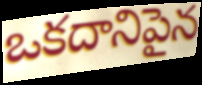
ఒకదానిపైన